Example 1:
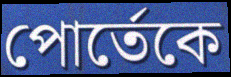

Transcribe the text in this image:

পোর্তেকে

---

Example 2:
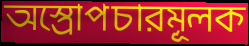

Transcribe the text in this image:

অস্ত্রোপচারমূলক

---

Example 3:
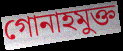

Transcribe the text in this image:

গোনাহমুক্ত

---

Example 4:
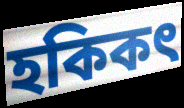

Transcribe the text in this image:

হকিকৎ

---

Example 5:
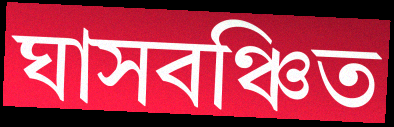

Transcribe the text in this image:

ঘাসবঞ্চিত